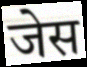
जेस